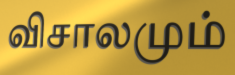
விசாலமும்